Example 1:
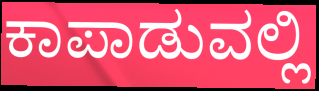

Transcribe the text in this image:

ಕಾಪಾಡುವಲ್ಲಿ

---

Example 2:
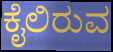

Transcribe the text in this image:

ಕೈಲಿರುವ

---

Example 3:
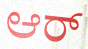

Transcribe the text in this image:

ಆರ್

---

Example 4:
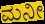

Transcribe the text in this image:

ಮನೀ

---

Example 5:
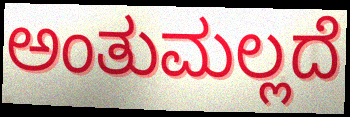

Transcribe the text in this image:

ಅಂತುಮಲ್ಲದೆ